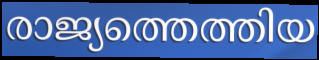
രാജ്യത്തെത്തിയ